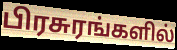
பிரசுரங்களில்